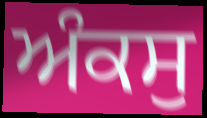
ਅੰਕਸੁ